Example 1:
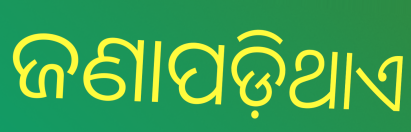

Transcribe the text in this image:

ଜଣାପଡ଼ିଥାଏ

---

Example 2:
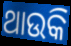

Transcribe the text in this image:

ଥାଉକି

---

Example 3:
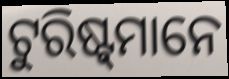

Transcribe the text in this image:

ଟୁରିଷ୍ଟ୍‍ମାନେ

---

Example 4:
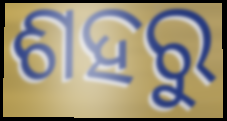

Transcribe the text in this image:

ଶହରୁ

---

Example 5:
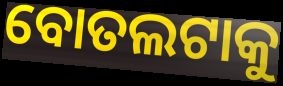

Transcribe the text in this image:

ବୋତଲଟାକୁ